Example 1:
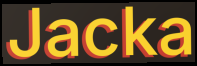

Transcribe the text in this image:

Jacka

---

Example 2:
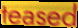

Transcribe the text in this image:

teased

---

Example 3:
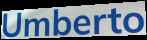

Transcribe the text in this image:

Umberto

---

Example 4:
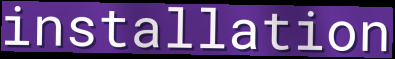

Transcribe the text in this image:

installation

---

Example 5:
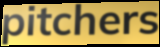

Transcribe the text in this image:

pitchers